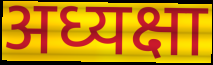
अध्यक्षा